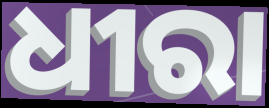
ଧୀରା